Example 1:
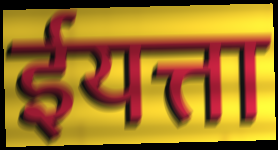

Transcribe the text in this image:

ईयत्ता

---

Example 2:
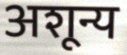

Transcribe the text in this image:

अशून्य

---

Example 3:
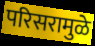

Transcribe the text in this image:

परिसरामुळे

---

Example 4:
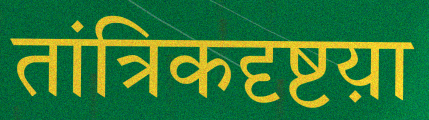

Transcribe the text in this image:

तांत्रिकदृष्टय़ा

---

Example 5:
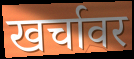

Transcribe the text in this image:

खर्चावर